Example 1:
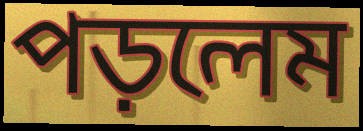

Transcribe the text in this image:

পড়লেম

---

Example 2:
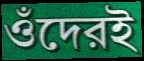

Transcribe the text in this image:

ওঁদেরই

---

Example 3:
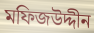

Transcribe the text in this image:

মফিজউদ্দীন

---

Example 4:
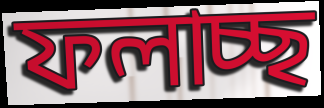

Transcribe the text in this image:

ফলাচ্ছ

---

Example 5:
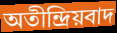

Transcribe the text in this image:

অতীন্দ্রিয়বাদ